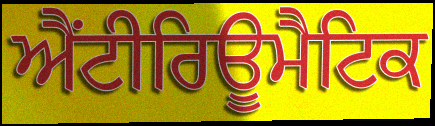
ਐਂਟੀਰਿਊਮੈਟਿਕ